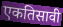
एकतिसावी